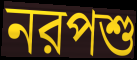
নরপশু